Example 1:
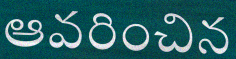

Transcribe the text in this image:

ఆవరించిన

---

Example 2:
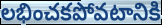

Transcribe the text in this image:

లభించకపోవటానికి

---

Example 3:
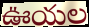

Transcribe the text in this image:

ఊయల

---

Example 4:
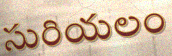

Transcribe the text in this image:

సురియలం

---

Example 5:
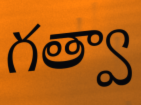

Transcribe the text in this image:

గత్వా